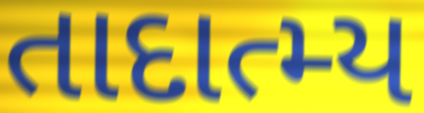
તાદાત્મ્ય